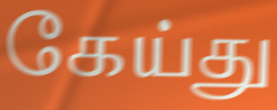
கேய்து